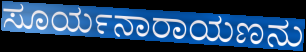
ಸೂರ್ಯನಾರಾಯಣನು